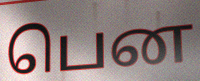
பென